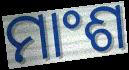
ମାଂଶ